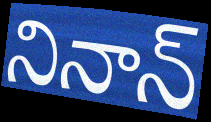
నినాన్